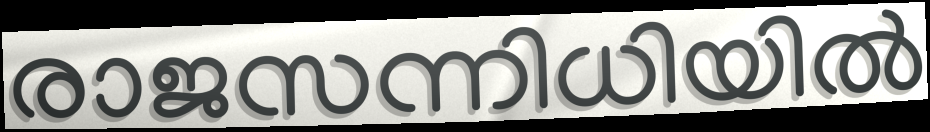
രാജസന്നിധിയിൽ